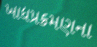
ખાદ્યપ્રક્રમણના